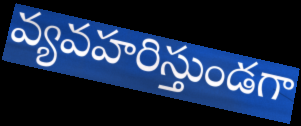
వ్యవహరిస్తుండగా